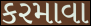
કરમાવા